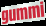
gummi